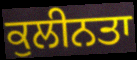
ਕੁਲੀਨਤਾ